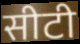
सीटी